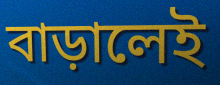
বাড়ালেই